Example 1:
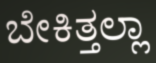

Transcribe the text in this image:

ಬೇಕಿತ್ತಲ್ಲಾ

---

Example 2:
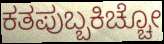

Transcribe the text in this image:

ಕತಪುಬ್ಬಕಿಚ್ಚೋ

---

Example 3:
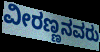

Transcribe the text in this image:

ವೀರಣ್ಣನವರು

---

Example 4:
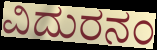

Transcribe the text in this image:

ವಿದುರನಂ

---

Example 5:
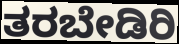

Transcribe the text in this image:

ತರಬೇಡಿರಿ